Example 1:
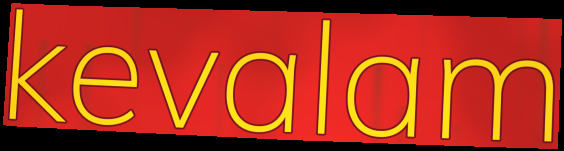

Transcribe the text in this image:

kevalam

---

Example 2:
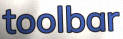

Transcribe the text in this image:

toolbar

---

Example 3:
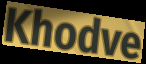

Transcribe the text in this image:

Khodve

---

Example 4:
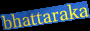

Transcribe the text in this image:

bhattaraka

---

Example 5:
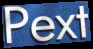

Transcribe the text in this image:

Pext